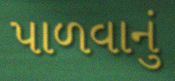
પાળવાનું